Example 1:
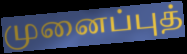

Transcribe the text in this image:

முனைப்புத்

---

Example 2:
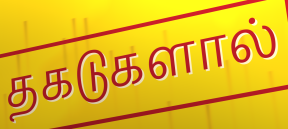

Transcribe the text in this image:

தகடுகளால்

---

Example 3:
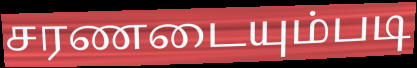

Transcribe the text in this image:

சரணடையும்படி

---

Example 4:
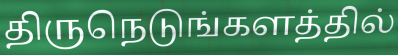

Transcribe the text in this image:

திருநெடுங்களத்தில்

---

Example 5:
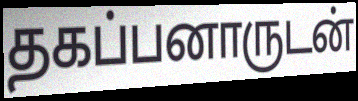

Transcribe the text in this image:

தகப்பனாருடன்